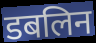
डबलिन